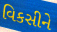
વિકસીને